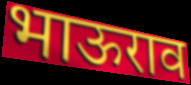
भाऊराव